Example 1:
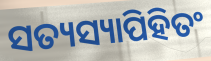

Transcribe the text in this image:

ସତ୍ୟସ୍ୟାପିହିତଂ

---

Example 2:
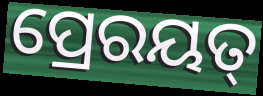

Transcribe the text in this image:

ପ୍ରେରୟତ୍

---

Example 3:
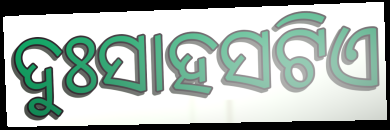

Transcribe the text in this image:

ଦୁଃସାହସଟିଏ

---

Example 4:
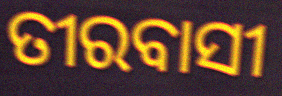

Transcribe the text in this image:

ତୀରବାସୀ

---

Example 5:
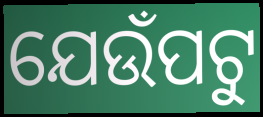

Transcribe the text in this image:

ଯେଉଁପଟୁ